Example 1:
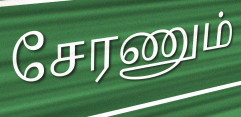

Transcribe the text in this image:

சேரணும்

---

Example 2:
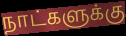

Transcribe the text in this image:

நாட்களுக்கு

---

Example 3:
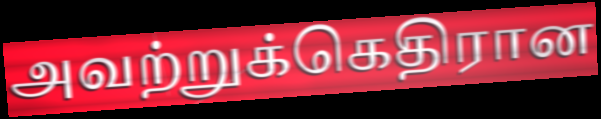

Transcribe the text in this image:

அவற்றுக்கெதிரான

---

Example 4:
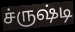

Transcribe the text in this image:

ச்ருஷ்டி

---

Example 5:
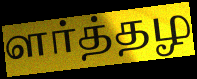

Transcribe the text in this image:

ளர்த்தழ